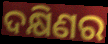
ଦକ୍ଷିଣର